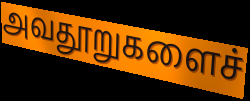
அவதூறுகளைச்